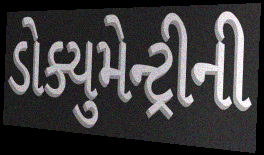
ડોક્યુમેન્ટ્રીની